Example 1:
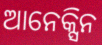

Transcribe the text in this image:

ଆନେକ୍ସିନ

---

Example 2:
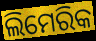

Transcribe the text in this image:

ଲିମେରିକ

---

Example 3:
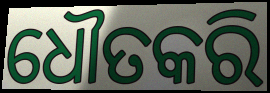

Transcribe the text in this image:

ଧୌତକରି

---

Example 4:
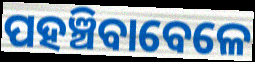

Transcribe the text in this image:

ପହଞ୍ଚିବାବେଳେ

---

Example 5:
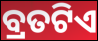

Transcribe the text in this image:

ବ୍ରତଟିଏ